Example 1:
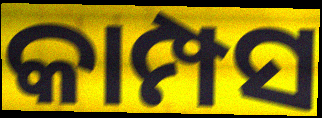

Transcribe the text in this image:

କାମ୍ପସ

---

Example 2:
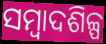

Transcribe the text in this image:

ସମ୍ୱାଦଶିଳ୍ପ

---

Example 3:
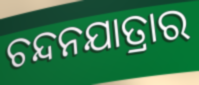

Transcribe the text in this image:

ଚନ୍ଦନଯାତ୍ରାର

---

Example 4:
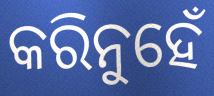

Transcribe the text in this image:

କରିନୁହେଁ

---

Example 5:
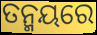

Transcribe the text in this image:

ତନ୍ମୟରେ